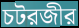
চটরজীর